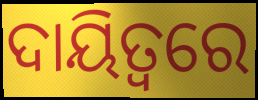
ଦାୟିତ୍ୱରେ